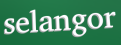
selangor